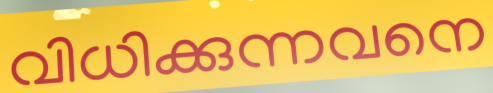
വിധിക്കുന്നവനെ